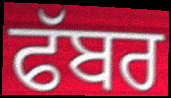
ਫੱਬਰ